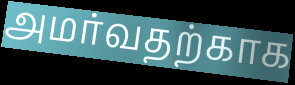
அமர்வதற்காக